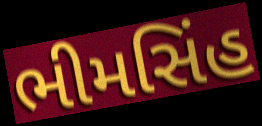
ભીમસિંહ